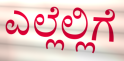
ಎಲ್ಲೆಲ್ಲಿಗೆ